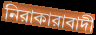
নিরাকারাবাদী